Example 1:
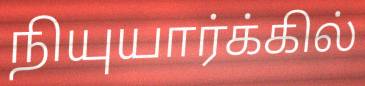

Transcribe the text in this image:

நியுயார்க்கில்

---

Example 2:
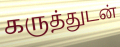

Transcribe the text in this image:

கருத்துடன்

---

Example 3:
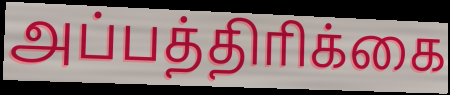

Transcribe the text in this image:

அப்பத்திரிக்கை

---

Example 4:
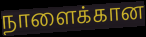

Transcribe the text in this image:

நாளைக்கான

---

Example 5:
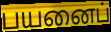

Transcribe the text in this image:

பயனைப்